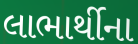
લાભાર્થીના